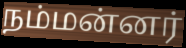
நம்மன்னர்